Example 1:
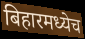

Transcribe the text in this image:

बिहारमध्येच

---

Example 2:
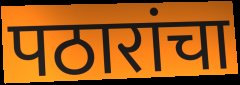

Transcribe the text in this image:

पठारांचा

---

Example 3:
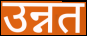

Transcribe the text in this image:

उन्नत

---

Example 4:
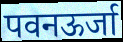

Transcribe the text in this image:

पवनऊर्जा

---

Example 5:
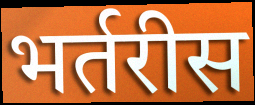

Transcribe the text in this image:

भर्तरीस